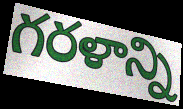
గరళాన్ని